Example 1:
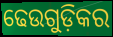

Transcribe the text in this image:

ଢେଉଗୁଡ଼ିକର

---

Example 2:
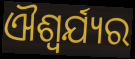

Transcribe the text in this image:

ଐଶ୍ଵର୍ଯ୍ୟର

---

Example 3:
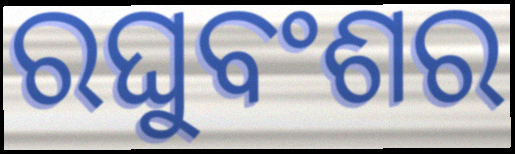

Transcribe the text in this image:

ରଘୁବଂଶର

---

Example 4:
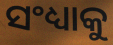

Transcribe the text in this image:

ସଂଧ୍ୟାକୁ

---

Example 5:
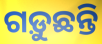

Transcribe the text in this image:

ଗଡ଼ୁଛନ୍ତି